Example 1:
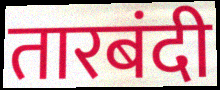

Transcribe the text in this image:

तारबंदी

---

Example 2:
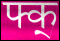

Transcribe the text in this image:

फ्क्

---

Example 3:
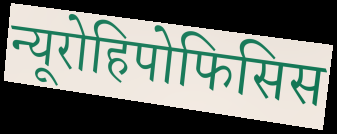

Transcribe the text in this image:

न्यूरोहिपोफिसिस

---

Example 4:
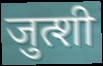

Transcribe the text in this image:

जुत्शी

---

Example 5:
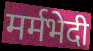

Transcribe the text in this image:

मर्मभेदी